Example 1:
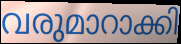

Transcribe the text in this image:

വരുമാറാക്കി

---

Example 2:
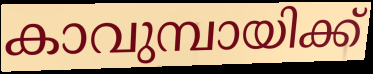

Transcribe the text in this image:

കാവുമ്പായിക്ക്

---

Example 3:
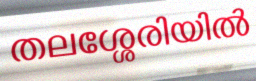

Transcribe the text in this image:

തലശ്ശേരിയിൽ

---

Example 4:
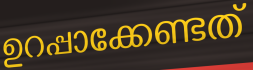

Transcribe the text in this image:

ഉറപ്പാക്കേണ്ടത്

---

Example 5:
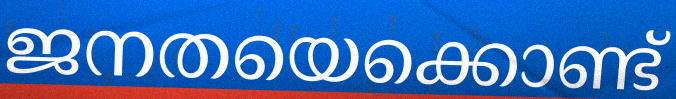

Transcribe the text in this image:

ജനതയെക്കൊണ്ട്